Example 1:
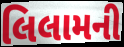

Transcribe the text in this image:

લિલામની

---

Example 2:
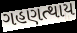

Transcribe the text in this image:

ગહણત્થાય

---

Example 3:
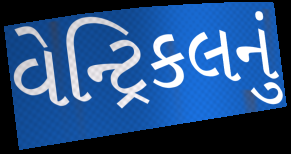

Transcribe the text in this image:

વેન્ટ્રિકલનું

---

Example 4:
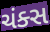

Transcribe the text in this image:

ચંક્સ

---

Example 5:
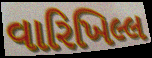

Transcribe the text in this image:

વારિખિલ્લ